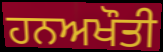
ਹਨਅਖੌਤੀ